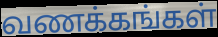
வணக்கங்கள்